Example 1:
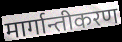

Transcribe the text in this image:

मार्गान्तीकरण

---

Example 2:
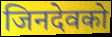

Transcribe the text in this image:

जिनदेवको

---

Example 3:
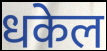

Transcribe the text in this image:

धकेल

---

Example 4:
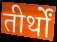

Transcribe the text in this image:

तीर्थों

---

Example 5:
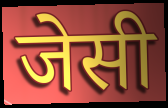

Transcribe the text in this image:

जेसी